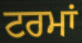
ਟਰਮਾਂ